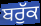
ਬਰੁੱਕ